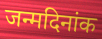
जन्मदिनांक